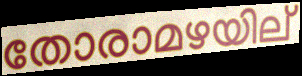
തോരാമഴയില്